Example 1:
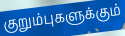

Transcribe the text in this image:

குறும்புகளுக்கும்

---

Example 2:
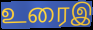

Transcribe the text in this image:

உரைஇ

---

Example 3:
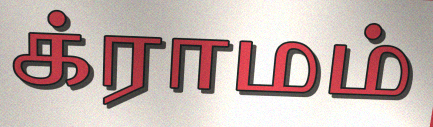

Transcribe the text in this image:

க்ராமம்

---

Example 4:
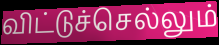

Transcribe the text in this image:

விட்டுச்செல்லும்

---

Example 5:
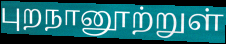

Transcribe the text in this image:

புறநானூற்றுள்